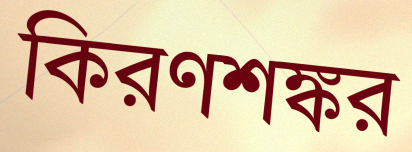
কিরণশঙ্কর